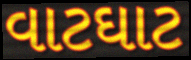
વાટઘાટ